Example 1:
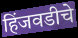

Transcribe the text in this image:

हिंजवडीचे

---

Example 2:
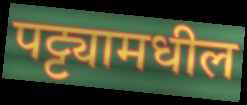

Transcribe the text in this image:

पट्ट्यामधील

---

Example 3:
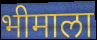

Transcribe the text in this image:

भीमाला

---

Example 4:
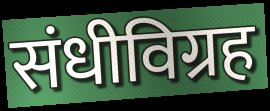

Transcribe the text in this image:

संधीविग्रह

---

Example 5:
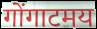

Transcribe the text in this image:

गोंगाटमय